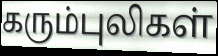
கரும்புலிகள்